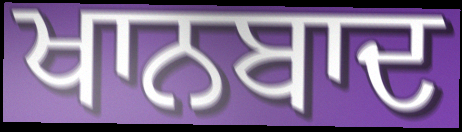
ਖਾਨਬਾਦ